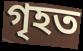
গৃহত